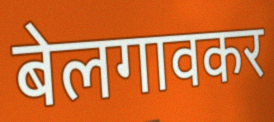
बेलगावकर